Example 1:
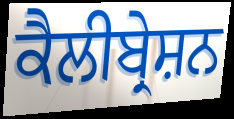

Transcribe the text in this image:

ਕੈਲੀਬ੍ਰੇਸ਼ਨ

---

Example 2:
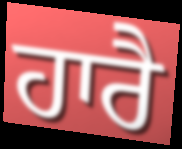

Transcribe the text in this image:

ਹਾਰੈ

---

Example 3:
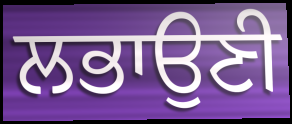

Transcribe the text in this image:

ਲਭਾਉਣੀ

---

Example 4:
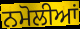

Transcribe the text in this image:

ਨਮੋਲੀਆਂ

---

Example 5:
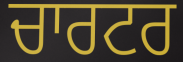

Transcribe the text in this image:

ਚਾਰਟਰ